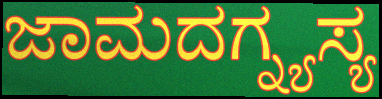
ಜಾಮದಗ್ನ್ಯಸ್ಯ